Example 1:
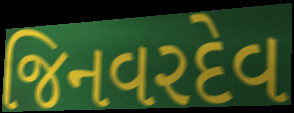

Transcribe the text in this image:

જિનવરદેવ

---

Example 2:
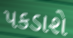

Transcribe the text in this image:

પકડાશે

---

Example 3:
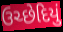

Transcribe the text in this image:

ઉચ્છેદિયું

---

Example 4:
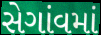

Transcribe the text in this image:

સેગાંવમાં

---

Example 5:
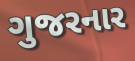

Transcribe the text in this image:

ગુજરનાર